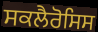
ਸਕਲੈਰੋਸਿਸ